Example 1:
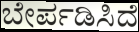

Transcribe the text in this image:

ಬೇರ್ಪಡಿಸಿದೆ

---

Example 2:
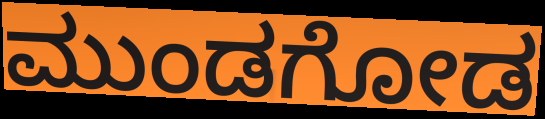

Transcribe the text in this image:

ಮುಂಡಗೋಡ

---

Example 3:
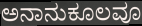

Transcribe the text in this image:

ಅನಾನುಕೂಲವೂ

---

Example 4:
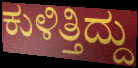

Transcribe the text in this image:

ಕುಳಿತ್ತಿದ್ದು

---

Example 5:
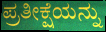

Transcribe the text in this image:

ಪ್ರತೀಕ್ಷೆಯನ್ನು